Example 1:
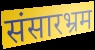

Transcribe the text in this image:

संसारभ्रम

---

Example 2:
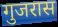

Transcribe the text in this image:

गुजरास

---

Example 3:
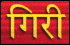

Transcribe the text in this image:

गिरी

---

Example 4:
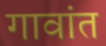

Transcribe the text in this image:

गावांत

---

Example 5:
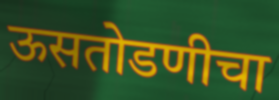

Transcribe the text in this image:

ऊसतोडणीचा